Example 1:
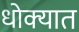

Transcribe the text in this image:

धोक्‍यात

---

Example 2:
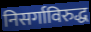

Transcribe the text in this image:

निसर्गाविरुद्ध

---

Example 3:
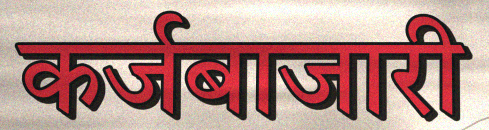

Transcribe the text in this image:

कर्जबाजारी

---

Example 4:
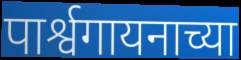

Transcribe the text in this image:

पार्श्वगायनाच्या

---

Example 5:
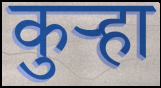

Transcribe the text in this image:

कुऱ्हा